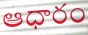
ఆధారం